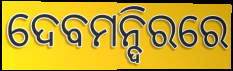
ଦେବମନ୍ଦିରରେ